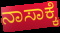
ನಾಸಾಕ್ಕೆ